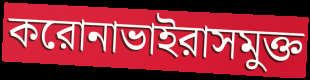
করোনাভাইরাসমুক্ত